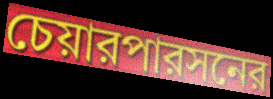
চেয়ারপারসনের